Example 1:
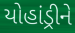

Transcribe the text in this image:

યોહાંડ્રીને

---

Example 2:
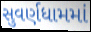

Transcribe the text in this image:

સુવર્ણધામમાં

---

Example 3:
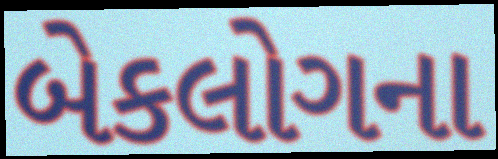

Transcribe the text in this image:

બેકલોગના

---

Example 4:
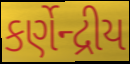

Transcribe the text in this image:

કર્ણેન્દ્રીય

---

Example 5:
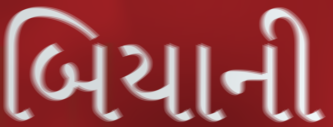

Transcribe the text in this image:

બિયાની